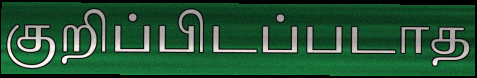
குறிப்பிடப்படாத